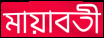
মায়াবতী